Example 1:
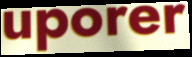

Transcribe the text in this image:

uporer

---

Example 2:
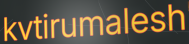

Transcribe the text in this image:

kvtirumalesh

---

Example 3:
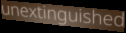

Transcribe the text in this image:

unextinguished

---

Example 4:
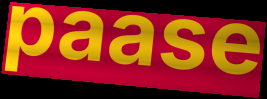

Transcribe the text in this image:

paase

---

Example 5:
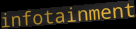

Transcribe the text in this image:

infotainment